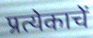
प्रत्येकाचें